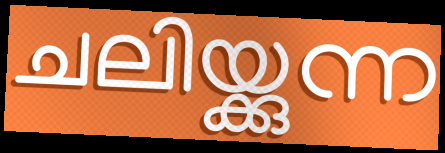
ചലിയ്ക്കുന്ന